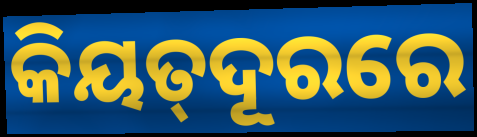
କିୟତ୍‌ଦୂରରେ